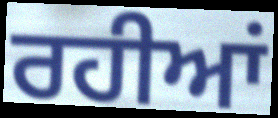
ਰਹੀਆਂ